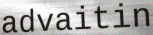
advaitin